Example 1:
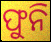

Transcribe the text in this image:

ଫୁନି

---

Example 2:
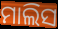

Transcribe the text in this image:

ମାଲିସ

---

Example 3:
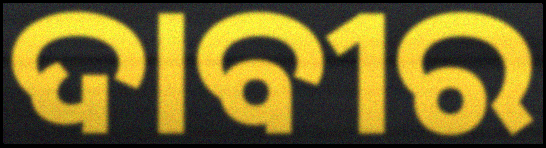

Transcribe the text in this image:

ଦାବୀର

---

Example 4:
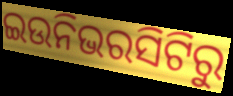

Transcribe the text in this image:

ଇଉନିଭରସିଟିରୁ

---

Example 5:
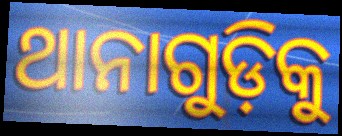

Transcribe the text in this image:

ଥାନାଗୁଡ଼ିକୁ